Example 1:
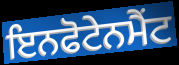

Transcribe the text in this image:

ਇਨਫੋਟੇਨਮੈਂਟ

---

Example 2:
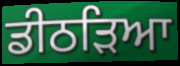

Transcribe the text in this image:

ਡੀਠੜਿਆ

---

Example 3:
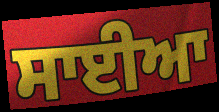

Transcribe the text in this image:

ਸਾਈਆ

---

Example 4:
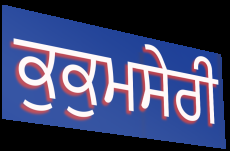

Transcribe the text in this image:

ਕੁਕੁਮਸੇਰੀ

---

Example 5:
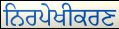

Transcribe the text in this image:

ਨਿਰਪੇਖੀਕਰਣ